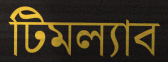
টিমল্যাব